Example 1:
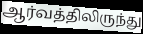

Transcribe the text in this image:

ஆர்வத்திலிருந்து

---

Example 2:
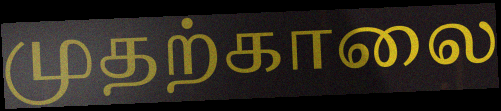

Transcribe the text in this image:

முதற்காலை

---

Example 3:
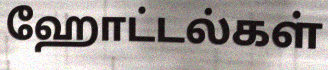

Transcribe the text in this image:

ஹோட்டல்கள்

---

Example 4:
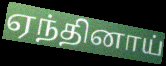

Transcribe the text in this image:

ஏந்தினாய்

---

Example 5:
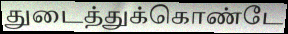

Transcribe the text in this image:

துடைத்துக்கொண்டே